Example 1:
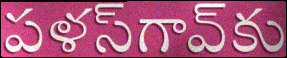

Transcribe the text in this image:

పళస్‌గావ్‌కు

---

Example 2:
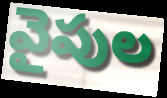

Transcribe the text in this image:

వైపుల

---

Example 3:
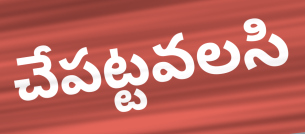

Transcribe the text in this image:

చేపట్టవలసి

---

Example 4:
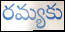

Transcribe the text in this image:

రమ్యకు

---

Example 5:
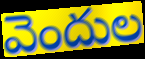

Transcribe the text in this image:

వెందుల